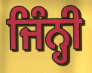
ਜਿੰਨ੍ਹੀ